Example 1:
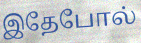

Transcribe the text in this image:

இதேபோல்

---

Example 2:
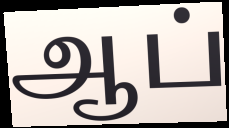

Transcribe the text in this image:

ஆப்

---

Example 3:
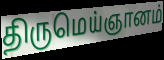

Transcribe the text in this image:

திருமெய்ஞானம்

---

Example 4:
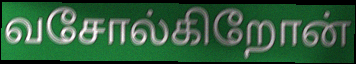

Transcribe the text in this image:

வசோல்கிறோன்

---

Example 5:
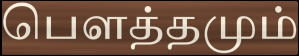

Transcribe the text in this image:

பௌத்தமும்